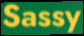
Sassy